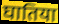
घातिया